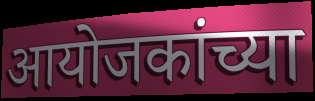
आयोजकांच्या